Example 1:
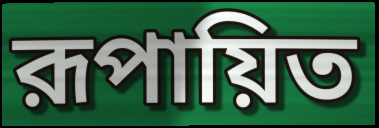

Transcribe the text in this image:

রূপায়িত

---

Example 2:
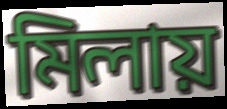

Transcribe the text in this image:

মিলায়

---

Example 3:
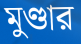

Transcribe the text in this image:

মুণ্ডার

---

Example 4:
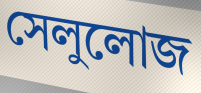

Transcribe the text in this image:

সেলুলোজ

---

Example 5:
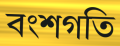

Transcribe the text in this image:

বংশগতি